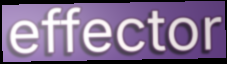
effector